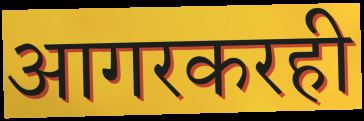
आगरकरही